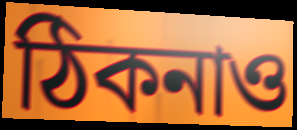
ঠিকনাও